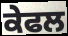
ਕੇਫਲ